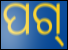
ପଗ୍